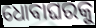
ଧୋବାଘରକୁ